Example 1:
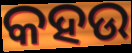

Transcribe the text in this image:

କହଉ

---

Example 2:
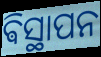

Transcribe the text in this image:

ଵିସ୍ଥାପନ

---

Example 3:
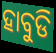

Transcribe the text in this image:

ହାବୁଡି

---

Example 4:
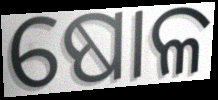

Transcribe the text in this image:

ଷୋଳ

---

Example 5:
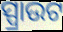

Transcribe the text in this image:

ସ୍ପ୍ରାଉଟ